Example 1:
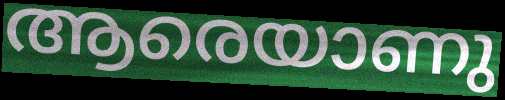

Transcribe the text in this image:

ആരെയാണു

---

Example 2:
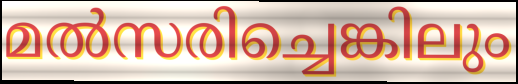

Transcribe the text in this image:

മൽസരിച്ചെങ്കിലും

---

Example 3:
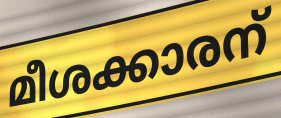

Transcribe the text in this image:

മീശക്കാരന്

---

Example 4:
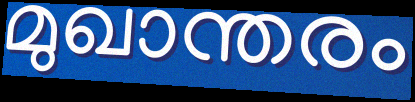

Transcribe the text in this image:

മുഖാന്തരം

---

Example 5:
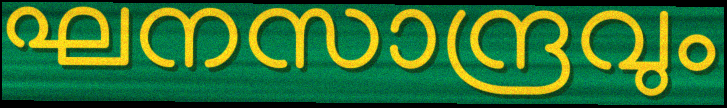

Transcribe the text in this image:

ഘനസാന്ദ്രവും